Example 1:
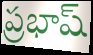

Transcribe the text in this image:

ప్రభాష్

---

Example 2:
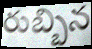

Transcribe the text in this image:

రుబ్బిన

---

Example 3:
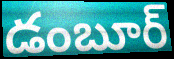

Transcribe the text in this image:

డంబూర్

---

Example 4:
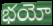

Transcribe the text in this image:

భయో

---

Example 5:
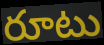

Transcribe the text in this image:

రూటు